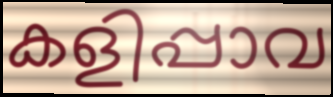
കളിപ്പാവ